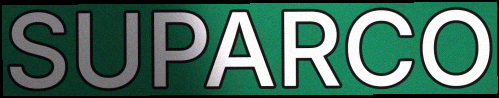
SUPARCO